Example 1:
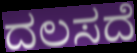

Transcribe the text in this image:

ದಲಸದೆ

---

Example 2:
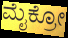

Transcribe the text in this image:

ಮೈಕ್ರೋ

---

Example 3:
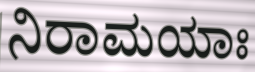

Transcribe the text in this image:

ನಿರಾಮಯಾಃ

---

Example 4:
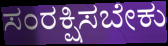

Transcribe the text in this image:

ಸಂರಕ್ಷಿಸಬೇಕು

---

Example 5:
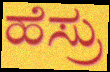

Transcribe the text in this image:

ಹೆಸ್ರು